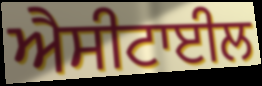
ਐਸੀਟਾਈਲ